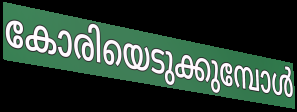
കോരിയെടുക്കുമ്പോൾ